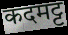
कदमट्ट